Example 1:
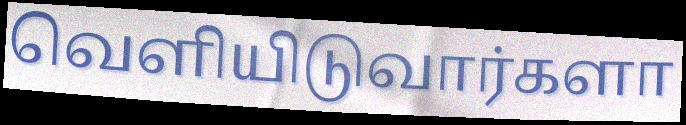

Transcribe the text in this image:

வெளியிடுவார்களா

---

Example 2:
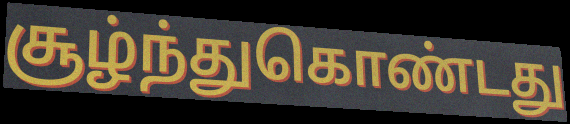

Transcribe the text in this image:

சூழ்ந்துகொண்டது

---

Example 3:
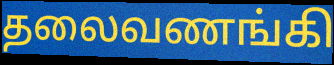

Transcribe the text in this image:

தலைவணங்கி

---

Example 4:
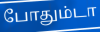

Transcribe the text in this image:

போதும்டா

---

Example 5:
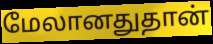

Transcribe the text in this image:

மேலானதுதான்